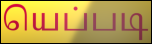
யெப்படி